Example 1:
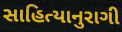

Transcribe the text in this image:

સાહિત્યાનુરાગી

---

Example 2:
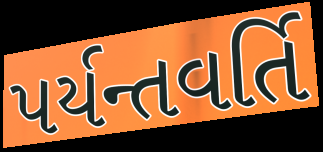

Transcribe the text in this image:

પર્યન્તવર્તિ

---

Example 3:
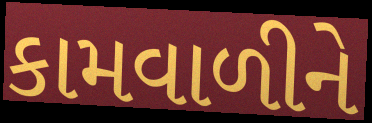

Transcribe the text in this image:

કામવાળીને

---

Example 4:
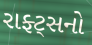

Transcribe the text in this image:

રાફ્ટ્સનો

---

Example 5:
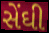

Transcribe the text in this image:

સેંઘી